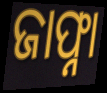
ଜାଫ୍ନା